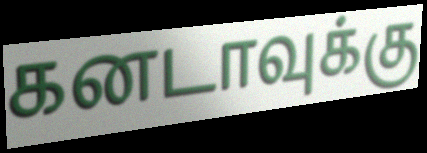
கனடாவுக்கு